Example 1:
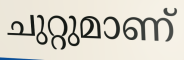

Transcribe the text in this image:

ചുറ്റുമാണ്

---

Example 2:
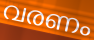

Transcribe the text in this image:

വരണം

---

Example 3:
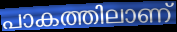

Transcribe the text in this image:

പാകത്തിലാണ്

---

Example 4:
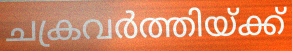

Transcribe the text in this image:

ചക്രവർത്തിയ്ക്ക്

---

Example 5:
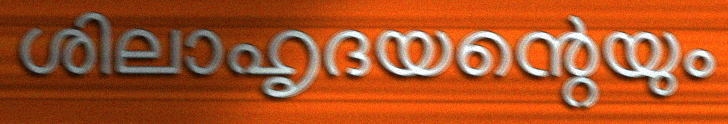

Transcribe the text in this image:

ശിലാഹൃദയന്റെയും